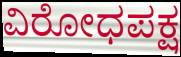
ವಿರೋಧಪಕ್ಷ